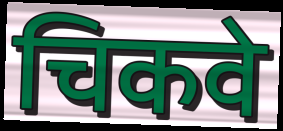
चिकवे